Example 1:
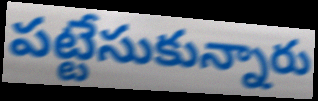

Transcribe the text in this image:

పట్టేసుకున్నారు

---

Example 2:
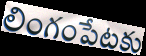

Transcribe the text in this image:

లింగంపేటకు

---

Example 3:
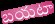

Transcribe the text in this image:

బయటా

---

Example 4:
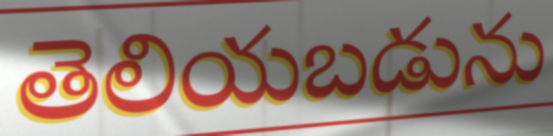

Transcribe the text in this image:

తెలియబడును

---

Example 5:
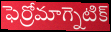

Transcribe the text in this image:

ఫెర్రోమాగ్నెటిక్